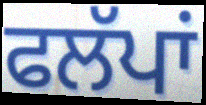
ਫਲੱਪਾਂ